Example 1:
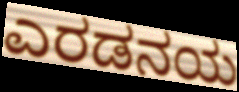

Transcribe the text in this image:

ಎರಡನಯ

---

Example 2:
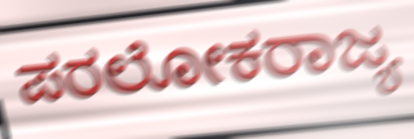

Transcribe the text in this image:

ಪರಲೋಕರಾಜ್ಯ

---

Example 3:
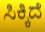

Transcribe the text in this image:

ಸಿಕ್ಕಿದೆ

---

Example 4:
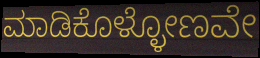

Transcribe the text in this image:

ಮಾಡಿಕೊಳ್ಳೋಣವೇ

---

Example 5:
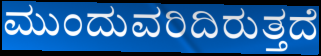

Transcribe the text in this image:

ಮುಂದುವರಿದಿರುತ್ತದೆ